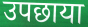
उपछाया